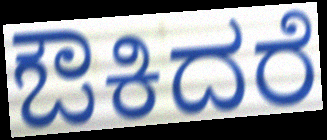
ಔಕಿದರೆ